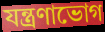
যন্ত্রণাভোগ